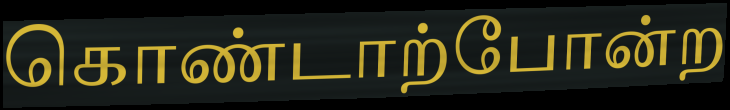
கொண்டாற்போன்ற